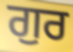
ਗੁਰ